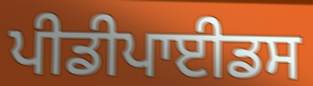
ਪੀਡੀਪਾਈਡਸ